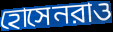
হোসেনরাও